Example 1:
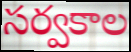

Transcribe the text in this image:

సర్వకాల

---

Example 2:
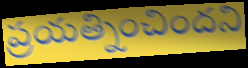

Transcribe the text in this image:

ప్రయత్నించిందని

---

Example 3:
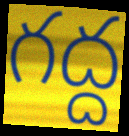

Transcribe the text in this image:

గద్ద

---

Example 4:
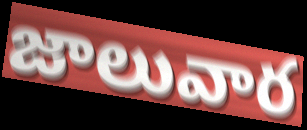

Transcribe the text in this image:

జాలువార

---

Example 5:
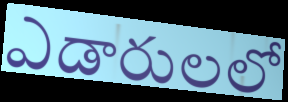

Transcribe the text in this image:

ఎడారులలో